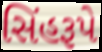
સિંહરૂપે